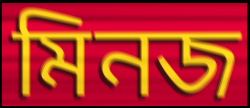
মিনজ